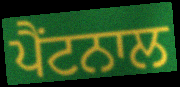
ਪੈਂਟਨਾਲ